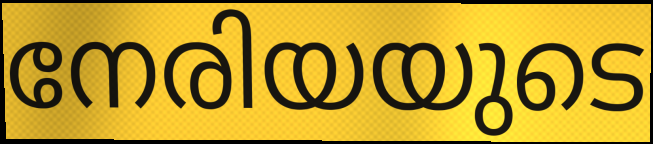
നേരിയയുടെ